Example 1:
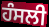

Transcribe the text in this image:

ਹੰਸਲੀ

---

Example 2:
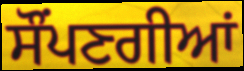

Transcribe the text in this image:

ਸੌਂਪਣਗੀਆਂ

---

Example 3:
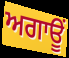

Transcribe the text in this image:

ਅਗਾਊਂ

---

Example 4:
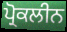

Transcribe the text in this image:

ਪ੍ਰੋਕਲੀਨ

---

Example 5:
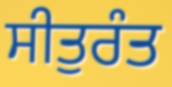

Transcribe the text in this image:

ਸੀਤੁਰੰਤ